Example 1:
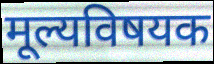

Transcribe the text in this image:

मूल्यविषयक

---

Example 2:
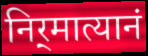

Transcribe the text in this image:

निर्मात्यानं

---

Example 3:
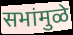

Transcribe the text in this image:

सभांमुळे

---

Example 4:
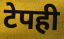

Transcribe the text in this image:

टेपही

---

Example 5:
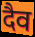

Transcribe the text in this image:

दैव